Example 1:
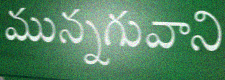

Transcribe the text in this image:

మున్నగువాని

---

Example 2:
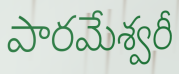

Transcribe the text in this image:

పారమేశ్వరీ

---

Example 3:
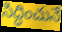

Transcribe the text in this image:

సిద్ధించునే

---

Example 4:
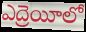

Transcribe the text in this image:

ఎద్రెయీలో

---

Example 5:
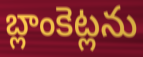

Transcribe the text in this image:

బ్లాంకెట్లను